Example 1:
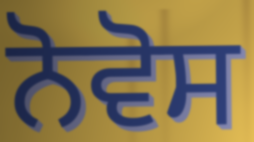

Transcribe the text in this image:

ਨੋਵੋਸ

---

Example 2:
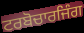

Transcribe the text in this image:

ਟਰਬੋਚਾਰਜਿੰਗ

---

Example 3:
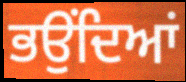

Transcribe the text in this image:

ਭਉਂਦਿਆਂ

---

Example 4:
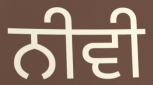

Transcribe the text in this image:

ਨੀਵੀ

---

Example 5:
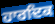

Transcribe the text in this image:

ਹਾਰਦਿਕ